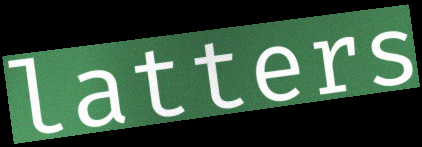
latters